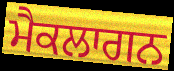
ਮੈਕਲਾਗਨ